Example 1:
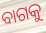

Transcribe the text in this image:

ବାଗକୁ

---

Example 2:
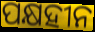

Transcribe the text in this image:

ପକ୍ଷହୀନ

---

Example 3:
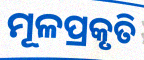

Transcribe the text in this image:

ମୂଳପ୍ରକୃତି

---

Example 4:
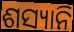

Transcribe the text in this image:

ଶସ୍ୟାନି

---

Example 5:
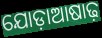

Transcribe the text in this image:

ଯୋଡ଼ାଆଷାଢ଼